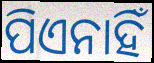
ପିଏନାହିଁ